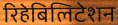
रिहेबिलिटेशन